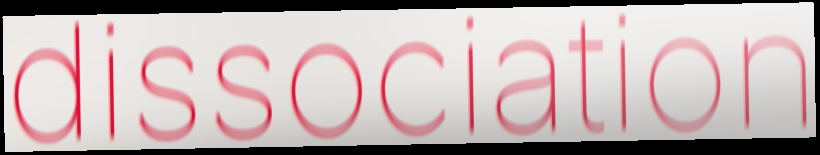
dissociation